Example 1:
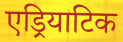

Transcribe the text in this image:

एड्रियाटिक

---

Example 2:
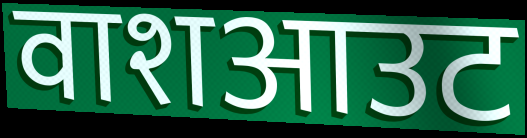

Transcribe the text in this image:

वाशआउट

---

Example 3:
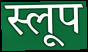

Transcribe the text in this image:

स्लूप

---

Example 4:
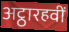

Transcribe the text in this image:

अट्ठारहवीं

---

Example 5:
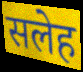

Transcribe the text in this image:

सलेह